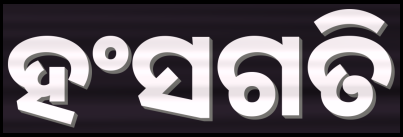
ହଂସଗତି